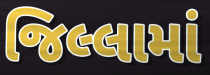
જિલ્લામાં